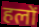
हलों